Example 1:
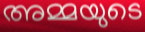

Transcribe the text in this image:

അമ്മയുടെ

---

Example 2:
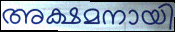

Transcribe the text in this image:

അക്ഷമനായി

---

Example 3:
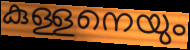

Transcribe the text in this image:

കുള്ളനെയും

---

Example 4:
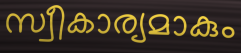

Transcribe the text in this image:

സ്വീകാര്യമാകും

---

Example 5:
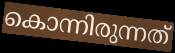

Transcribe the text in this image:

കൊന്നിരുന്നത്